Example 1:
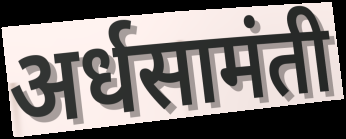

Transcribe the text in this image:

अर्धसामंती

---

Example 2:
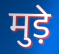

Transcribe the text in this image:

मुड़े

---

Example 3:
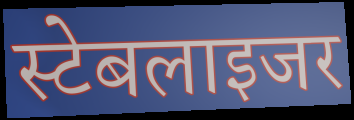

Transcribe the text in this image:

स्टेबलाइजर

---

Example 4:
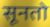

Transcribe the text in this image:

सूनतो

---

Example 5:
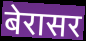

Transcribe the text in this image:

बेरासर